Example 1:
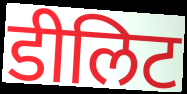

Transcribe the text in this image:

डीलिट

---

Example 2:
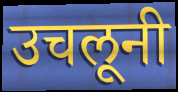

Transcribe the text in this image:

उचलूनी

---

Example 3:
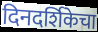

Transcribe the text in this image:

दिनदर्शिकेचा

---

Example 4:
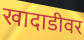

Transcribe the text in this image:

खादाडीवर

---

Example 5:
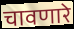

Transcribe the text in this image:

चावणारे